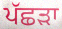
ਪੱਛੜਾ